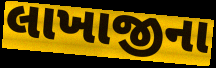
લાખાજીના